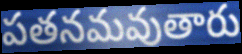
పతనమవుతారు